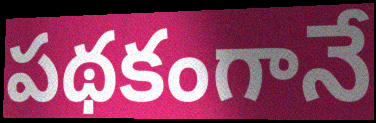
పథకంగానే